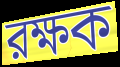
রক্ষক